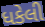
ધકેલી